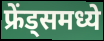
फ्रेंड्समध्ये